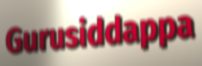
Gurusiddappa